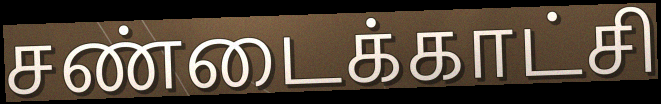
சண்டைக்காட்சி